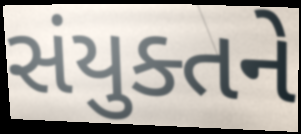
સંયુક્તને